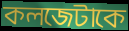
কলজেটাকে